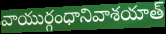
వాయుర్గంధానివాశయాత్